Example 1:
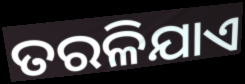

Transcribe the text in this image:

ତରଳିଯାଏ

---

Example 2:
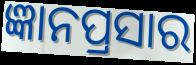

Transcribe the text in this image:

ଜ୍ଞାନପ୍ରସାର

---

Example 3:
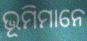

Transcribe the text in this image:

ଭୂମିମାନେ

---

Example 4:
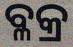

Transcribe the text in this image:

ବ୍ଳକ୍ର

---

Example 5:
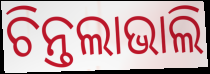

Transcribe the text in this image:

ଚିନ୍ତଲାଭାଲି